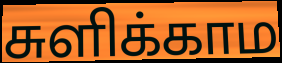
சுளிக்காம